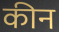
कीन